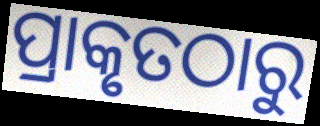
ପ୍ରାକୃତଠାରୁ